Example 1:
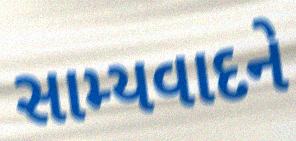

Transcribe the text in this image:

સામ્યવાદને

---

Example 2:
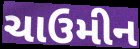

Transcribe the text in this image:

ચાઉમીન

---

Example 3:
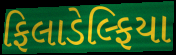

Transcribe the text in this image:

ફિલાડેલ્ફિયા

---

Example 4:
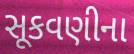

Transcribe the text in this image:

સૂકવણીના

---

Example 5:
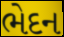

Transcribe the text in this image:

ભેદન